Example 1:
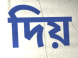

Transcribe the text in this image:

দিয়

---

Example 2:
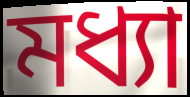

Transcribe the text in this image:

মধ্যা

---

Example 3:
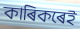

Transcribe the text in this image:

কাৰিকৰেই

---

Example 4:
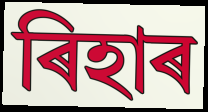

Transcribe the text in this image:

ৰিহাৰ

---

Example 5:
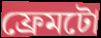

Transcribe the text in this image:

ফ্ৰেমটো